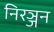
निरञ्जन